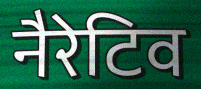
नैरेटिव